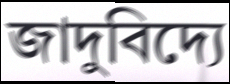
জাদুবিদ্যে